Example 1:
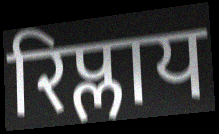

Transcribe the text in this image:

रिप्लाय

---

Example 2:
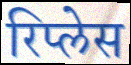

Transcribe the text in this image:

रिप्लेस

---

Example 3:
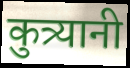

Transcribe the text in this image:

कुत्र्यानी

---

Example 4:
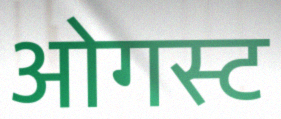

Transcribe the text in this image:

ओगस्ट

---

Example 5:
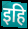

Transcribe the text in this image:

इहि